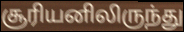
சூரியனிலிருந்து